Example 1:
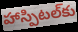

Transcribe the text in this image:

హాస్పిటల్‌కు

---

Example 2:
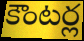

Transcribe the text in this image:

కౌంటర్ల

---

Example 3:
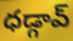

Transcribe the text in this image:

ధడ్గావ్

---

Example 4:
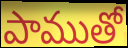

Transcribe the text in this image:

పాముతో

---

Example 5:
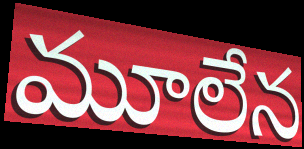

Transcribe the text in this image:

మూలేన